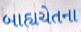
બાહ્યચેતના